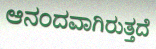
ಆನಂದವಾಗಿರುತ್ತದೆ